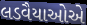
લડવૈયાઓએ